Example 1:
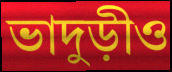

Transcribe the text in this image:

ভাদুড়ীও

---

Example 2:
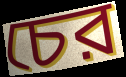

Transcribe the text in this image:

চের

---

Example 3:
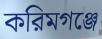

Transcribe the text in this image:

করিমগঞ্জে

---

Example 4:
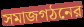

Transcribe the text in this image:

সমাজগঠনের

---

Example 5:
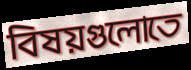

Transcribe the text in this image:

বিষয়গুলোতে